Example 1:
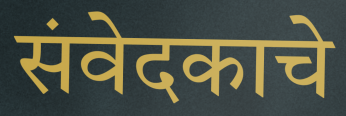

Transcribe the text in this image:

संवेदकाचे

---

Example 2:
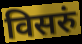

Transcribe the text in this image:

विसरुं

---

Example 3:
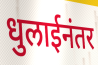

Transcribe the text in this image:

धुलाईनंतर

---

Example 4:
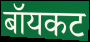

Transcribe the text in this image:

बॉयकट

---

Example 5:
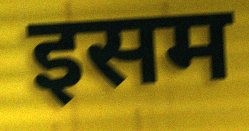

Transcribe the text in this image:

इसम